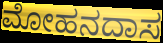
ಮೋಹನದಾಸ